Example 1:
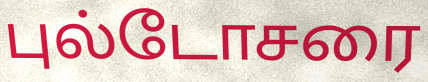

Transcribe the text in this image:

புல்டோசரை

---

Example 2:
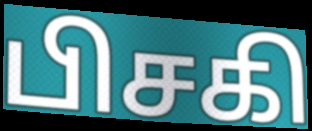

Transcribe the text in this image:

பிசகி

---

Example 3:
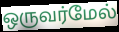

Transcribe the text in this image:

ஒருவர்மேல்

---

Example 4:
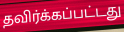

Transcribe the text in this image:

தவிர்க்கப்பட்டது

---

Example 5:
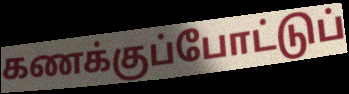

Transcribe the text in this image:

கணக்குப்போட்டுப்